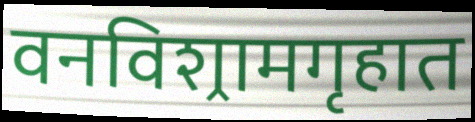
वनविश्रामगृहात